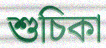
শুচিকা